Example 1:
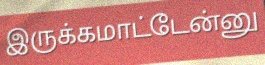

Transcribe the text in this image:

இருக்கமாட்டேன்னு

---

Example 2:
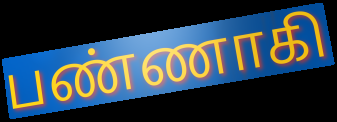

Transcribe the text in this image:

பண்ணாகி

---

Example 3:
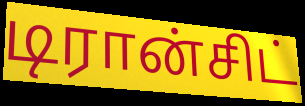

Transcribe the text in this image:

டிரான்சிட்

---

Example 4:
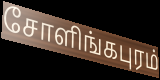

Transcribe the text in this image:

சோளிங்கபுரம்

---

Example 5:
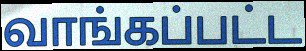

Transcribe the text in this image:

வாங்கப்பட்ட